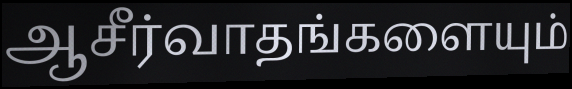
ஆசீர்வாதங்களையும்